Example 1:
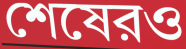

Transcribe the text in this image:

শেষেরও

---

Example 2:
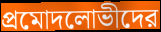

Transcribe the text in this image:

প্রমোদলোভীদের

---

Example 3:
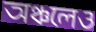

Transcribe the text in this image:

অঞ্চলেও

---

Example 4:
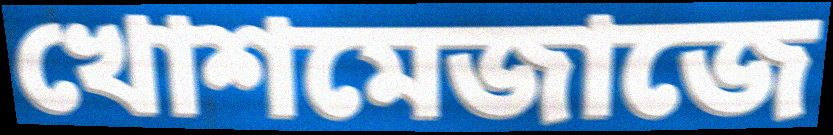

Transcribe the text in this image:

খোশমেজাজে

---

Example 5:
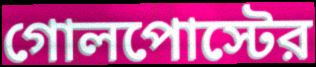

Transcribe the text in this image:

গোলপোস্টের